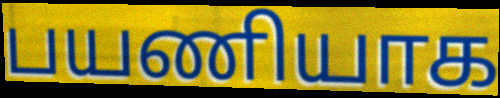
பயணியாக